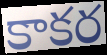
కాకర